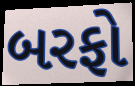
બરફો